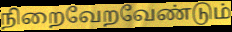
நிறைவேறவேண்டும்